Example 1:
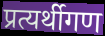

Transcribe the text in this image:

प्रत्यर्थीगण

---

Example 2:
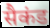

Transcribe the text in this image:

सैकंड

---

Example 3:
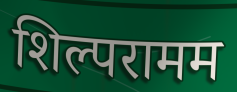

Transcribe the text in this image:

शिल्परामम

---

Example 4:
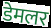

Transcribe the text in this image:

डेमलर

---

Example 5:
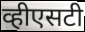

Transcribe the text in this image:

व्हीएसटी